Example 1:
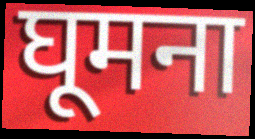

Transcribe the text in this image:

घूमना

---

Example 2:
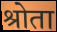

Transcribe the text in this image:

श्रोता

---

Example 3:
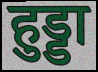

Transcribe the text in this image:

हुड्डा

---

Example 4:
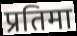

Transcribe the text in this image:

प्रतिमा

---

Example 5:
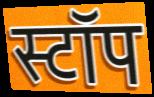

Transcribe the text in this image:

स्टॉप